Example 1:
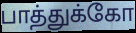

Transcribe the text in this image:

பாத்துக்கோ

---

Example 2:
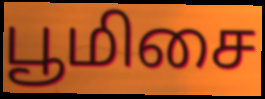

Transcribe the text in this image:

பூமிசை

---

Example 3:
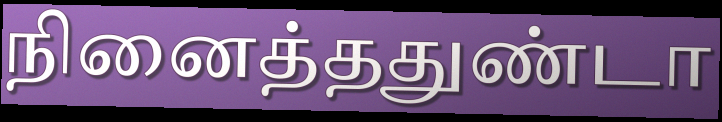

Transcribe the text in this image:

நினைத்ததுண்டா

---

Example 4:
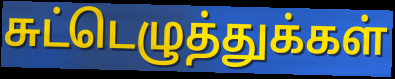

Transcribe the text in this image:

சுட்டெழுத்துக்கள்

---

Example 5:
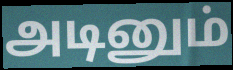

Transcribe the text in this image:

அடினும்